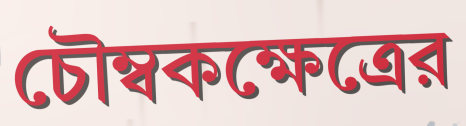
চৌম্বকক্ষেত্রের